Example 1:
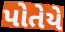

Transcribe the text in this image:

પોતેયે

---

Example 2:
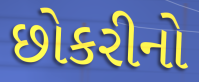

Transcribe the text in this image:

છોકરીનો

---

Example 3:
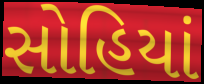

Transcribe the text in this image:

સોહિયાં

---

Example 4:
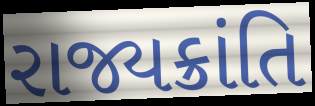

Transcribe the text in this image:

રાજ્યક્રાંતિ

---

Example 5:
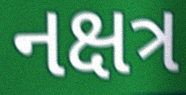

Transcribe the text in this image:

નક્ષત્ર